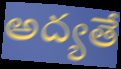
అద్యతే